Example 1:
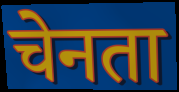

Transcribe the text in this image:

चेनता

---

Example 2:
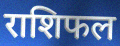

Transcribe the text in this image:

राशिफल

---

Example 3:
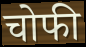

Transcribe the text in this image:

चोफी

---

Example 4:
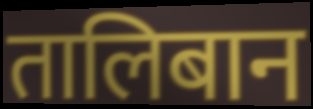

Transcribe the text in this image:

तालिबान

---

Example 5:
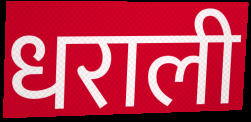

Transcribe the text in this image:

धराली